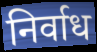
निर्वाध